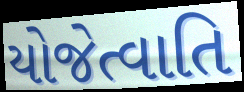
યોજેત્વાતિ